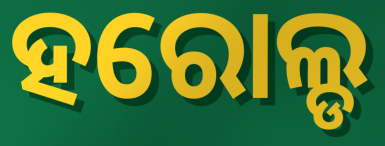
ହରୋଲ୍ଡ